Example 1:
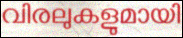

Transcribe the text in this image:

വിരലുകളുമായി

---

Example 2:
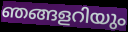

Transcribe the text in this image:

ഞങ്ങളറിയും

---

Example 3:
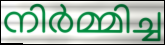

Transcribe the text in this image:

നിർമ്മിച്ച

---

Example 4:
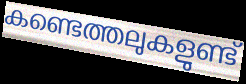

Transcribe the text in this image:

കണ്ടെത്തലുകളുണ്ട്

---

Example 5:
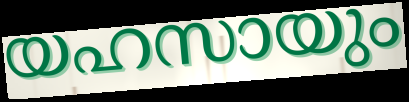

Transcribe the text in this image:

യഹസായും